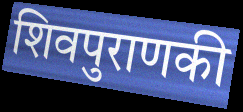
शिवपुराणकी